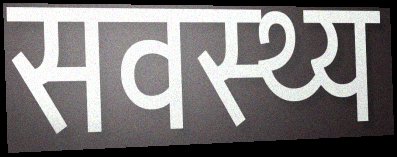
सवस्थ्य